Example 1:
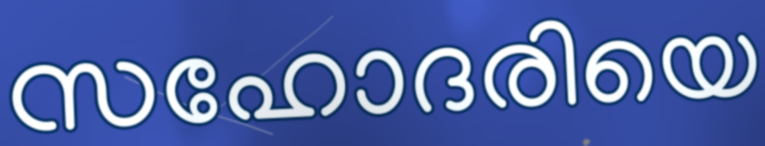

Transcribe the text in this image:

സഹോദരിയെ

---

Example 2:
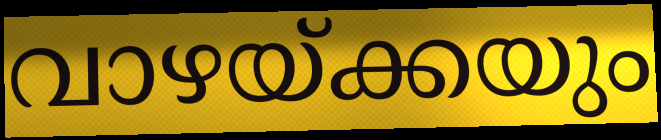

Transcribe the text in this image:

വാഴയ്ക്കയും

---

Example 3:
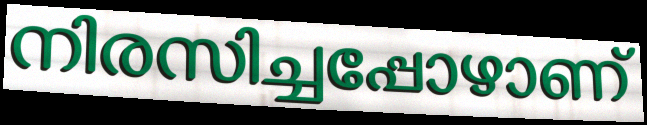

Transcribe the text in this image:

നിരസിച്ചപ്പോഴാണ്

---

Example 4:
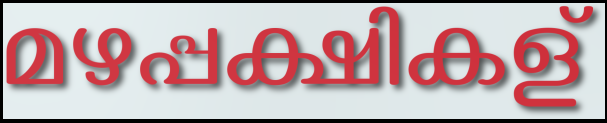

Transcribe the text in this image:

മഴപ്പക്ഷികള്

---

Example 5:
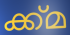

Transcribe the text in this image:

ക്ക്മ